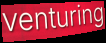
venturing